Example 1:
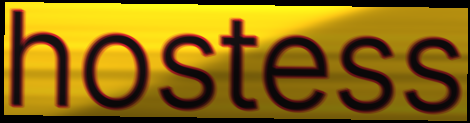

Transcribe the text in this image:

hostess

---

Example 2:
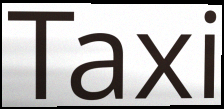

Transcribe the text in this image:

Taxi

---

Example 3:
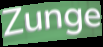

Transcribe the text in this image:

Zunge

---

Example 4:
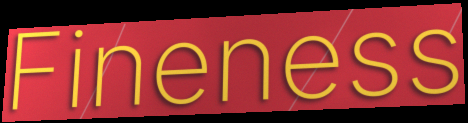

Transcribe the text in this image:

Fineness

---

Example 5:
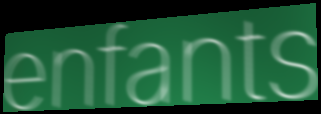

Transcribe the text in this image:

enfants